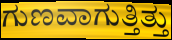
ಗುಣವಾಗುತ್ತಿತ್ತು